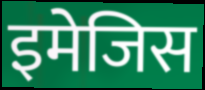
इमेजिस